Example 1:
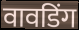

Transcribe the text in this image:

वावडिंग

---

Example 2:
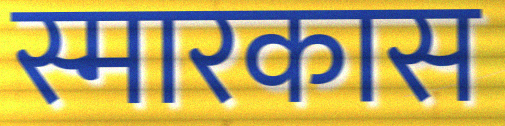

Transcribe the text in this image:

स्मारकास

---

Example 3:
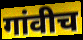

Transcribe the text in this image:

गांवीच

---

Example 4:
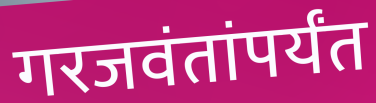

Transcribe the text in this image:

गरजवंतांपर्यंत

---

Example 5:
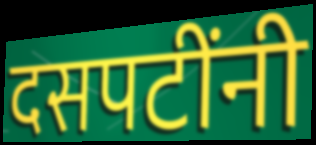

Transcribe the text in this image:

दसपटींनी